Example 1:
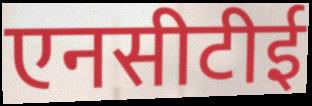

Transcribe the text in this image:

एनसीटीई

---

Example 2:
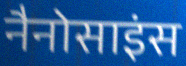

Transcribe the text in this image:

नैनोसाइंस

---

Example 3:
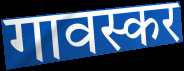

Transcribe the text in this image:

गावस्‍कर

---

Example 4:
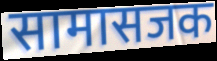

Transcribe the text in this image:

सामासजक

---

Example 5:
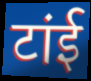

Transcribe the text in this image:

टांई